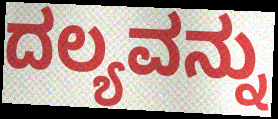
ದಲ್ಯವನ್ನು